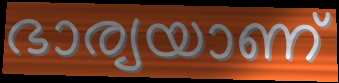
ഭാര്യയാണ്